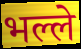
भल्ले